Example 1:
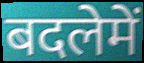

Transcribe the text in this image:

बदलेमें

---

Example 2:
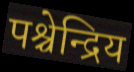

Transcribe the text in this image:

पश्चेन्द्रिय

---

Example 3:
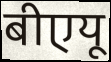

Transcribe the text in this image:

बीएयू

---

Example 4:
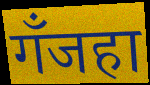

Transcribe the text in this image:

गँजहा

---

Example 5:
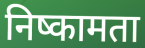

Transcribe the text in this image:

निष्कामता